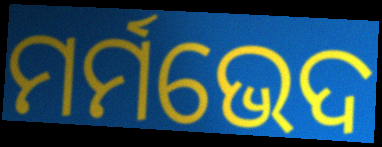
ମର୍ମଭେଦ